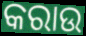
କରାଉ